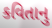
કવિતાનુ